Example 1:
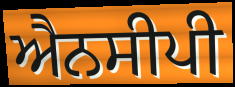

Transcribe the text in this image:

ਐਨਸੀਪੀ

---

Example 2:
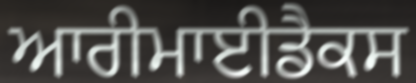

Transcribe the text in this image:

ਆਰੀਮਾਈਡੈਕਸ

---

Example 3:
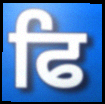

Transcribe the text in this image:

ਫਿ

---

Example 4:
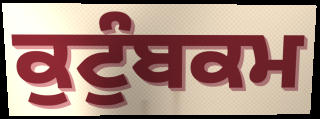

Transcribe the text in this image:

ਕੁਟੁੰਬਕਮ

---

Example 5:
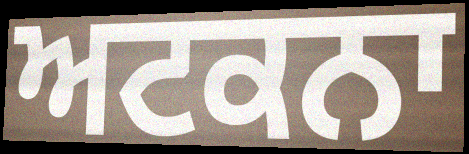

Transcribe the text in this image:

ਅਟਕਨਾ